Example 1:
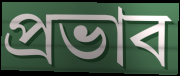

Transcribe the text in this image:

প্রভাব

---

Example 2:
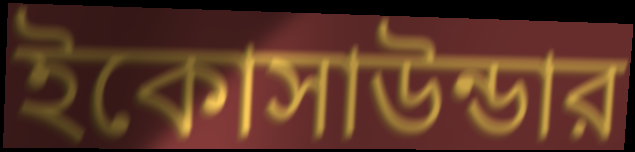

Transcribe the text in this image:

ইকোসাউন্ডার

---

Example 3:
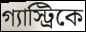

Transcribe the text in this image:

গ্যাস্ট্রিকে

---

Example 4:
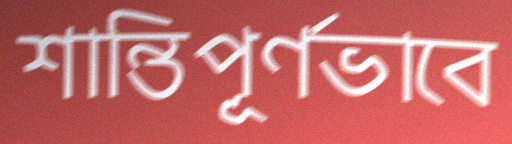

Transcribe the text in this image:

শান্তিপূর্ণভাবে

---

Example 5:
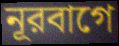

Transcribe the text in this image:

নূরবাগে